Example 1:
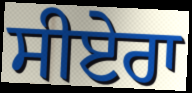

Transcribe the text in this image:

ਸੀਏਰਾ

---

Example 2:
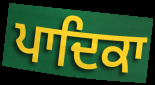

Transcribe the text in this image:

ਪਾਦਿਕਾ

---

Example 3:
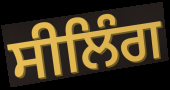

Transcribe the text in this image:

ਸੀਲਿੰਗ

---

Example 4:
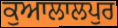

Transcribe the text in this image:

ਕੁਆਲਾਲਪੁਰ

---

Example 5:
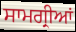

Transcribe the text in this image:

ਸਾਮਗ੍ਰੀਆਂ